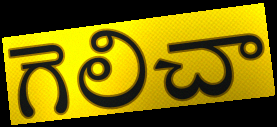
గెలిచా